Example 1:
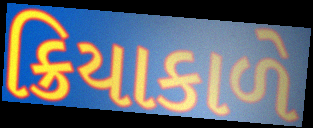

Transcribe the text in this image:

ક્રિયાકાળે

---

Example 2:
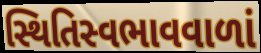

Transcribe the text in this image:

સ્થિતિસ્વભાવવાળાં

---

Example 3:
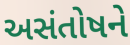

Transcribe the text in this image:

અસંતોષને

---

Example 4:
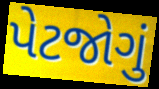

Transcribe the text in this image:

પેટજોગું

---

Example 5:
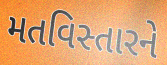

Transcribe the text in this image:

મતવિસ્તારને